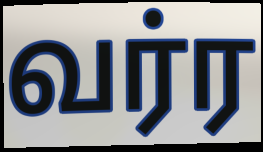
வர்ர